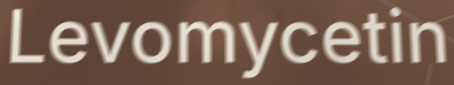
Levomycetin